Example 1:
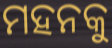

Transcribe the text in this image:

ମହନକୁ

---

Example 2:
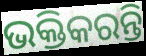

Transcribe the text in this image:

ଭକ୍ତିକରନ୍ତି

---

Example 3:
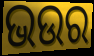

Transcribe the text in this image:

ଭଉର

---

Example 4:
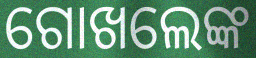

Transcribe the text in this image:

ଗୋଖଲେଙ୍କ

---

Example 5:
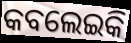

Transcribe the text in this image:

କବଲେଇକି